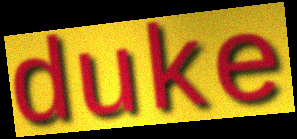
duke